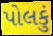
પોલકું